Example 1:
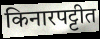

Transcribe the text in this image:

किनारपट्टीत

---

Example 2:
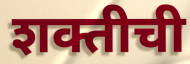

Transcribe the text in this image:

शक्तीची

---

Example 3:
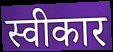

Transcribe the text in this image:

स्वीकार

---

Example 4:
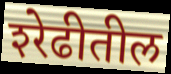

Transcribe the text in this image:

श्रेढीतील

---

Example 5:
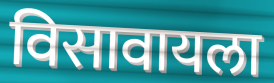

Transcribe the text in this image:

विसावायला